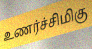
உணர்ச்சிமிகு